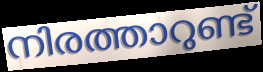
നിരത്താറുണ്ട്